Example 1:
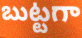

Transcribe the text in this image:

బుట్టగా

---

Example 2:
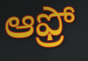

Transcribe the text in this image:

ఆఫ్రో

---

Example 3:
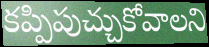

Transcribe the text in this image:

కప్పిపుచ్చుకోవాలని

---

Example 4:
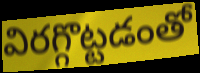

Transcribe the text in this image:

విరగ్గొట్టడంతో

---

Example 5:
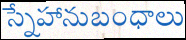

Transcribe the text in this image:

స్నేహానుబంధాలు